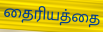
தைரியத்தை